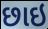
છાઇ